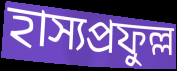
হাস্যপ্রফুল্ল